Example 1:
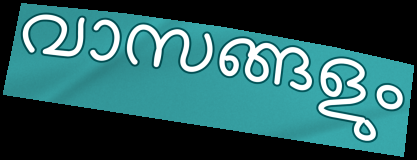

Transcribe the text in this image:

വാസങ്ങളും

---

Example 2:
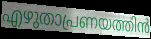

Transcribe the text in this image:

എഴുതാപ്രണയത്തിൻ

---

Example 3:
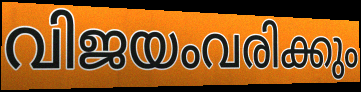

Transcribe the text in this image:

വിജയംവരിക്കും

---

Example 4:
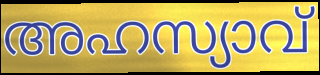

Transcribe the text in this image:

അഹസ്യാവ്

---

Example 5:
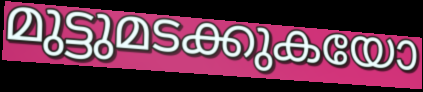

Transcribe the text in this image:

മുട്ടുമടക്കുകയോ